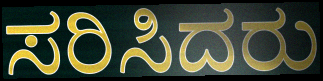
ಸರಿಸಿದರು